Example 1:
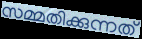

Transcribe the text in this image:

സമ്മതിക്കുന്നത്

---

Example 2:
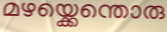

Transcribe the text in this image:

മഴയ്ക്കെന്തൊരു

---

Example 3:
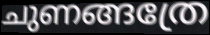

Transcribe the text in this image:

ചുണങ്ങത്രേ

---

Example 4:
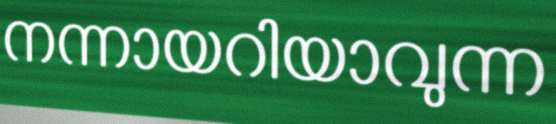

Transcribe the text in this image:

നന്നായറിയാവുന്ന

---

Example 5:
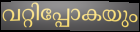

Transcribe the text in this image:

വറ്റിപ്പോകയും